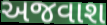
અજવાશ